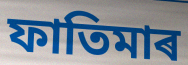
ফাতিমাৰ